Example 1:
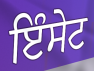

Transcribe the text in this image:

ਇੰਸੇਟ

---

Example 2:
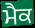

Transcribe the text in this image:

ਮੈਕ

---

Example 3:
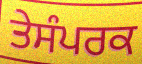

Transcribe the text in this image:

ਤੇਸੰਪਰਕ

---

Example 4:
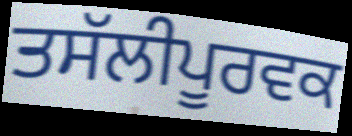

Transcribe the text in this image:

ਤਸੱਲੀਪੂਰਵਕ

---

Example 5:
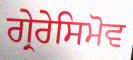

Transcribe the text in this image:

ਗ੍ਰੇਰੇਸਿਮੋਵ